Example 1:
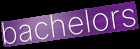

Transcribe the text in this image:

bachelors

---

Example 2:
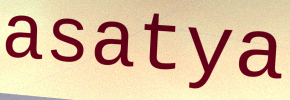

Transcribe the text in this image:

asatya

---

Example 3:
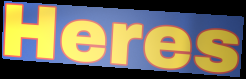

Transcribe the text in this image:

Heres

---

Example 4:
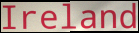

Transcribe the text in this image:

Ireland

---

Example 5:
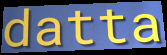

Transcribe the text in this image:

datta